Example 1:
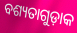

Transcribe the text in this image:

ବଶ୍ୟତାଗୁଡ଼ାକ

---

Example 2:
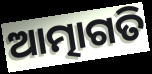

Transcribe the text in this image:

ଆତ୍ମାଗତି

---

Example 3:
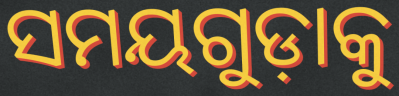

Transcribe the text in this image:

ସମୟଗୁଡ଼ାକୁ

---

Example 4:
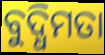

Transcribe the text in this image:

ବୁଦ୍ଧିମତା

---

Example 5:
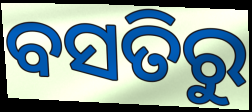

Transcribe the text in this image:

ବସତିରୁ